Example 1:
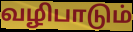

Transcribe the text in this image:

வழிபாடும்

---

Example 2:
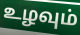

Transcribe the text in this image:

உழவும்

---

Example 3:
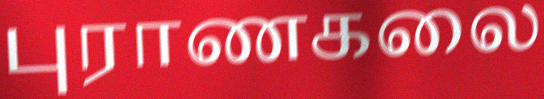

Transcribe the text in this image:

புராணகலை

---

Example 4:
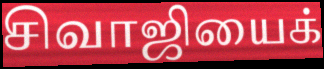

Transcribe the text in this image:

சிவாஜியைக்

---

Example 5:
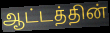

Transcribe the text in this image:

ஆட்டத்தின்